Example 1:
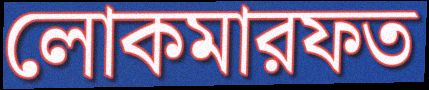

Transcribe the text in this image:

লোকমারফত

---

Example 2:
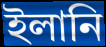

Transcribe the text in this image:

ইলানি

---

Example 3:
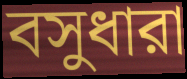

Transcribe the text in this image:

বসুধারা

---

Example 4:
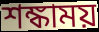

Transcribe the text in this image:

শঙ্কাময়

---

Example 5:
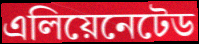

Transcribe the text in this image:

এলিয়েনেটেড